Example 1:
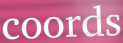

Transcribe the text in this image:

coords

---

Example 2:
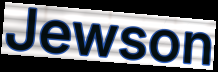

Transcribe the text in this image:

Jewson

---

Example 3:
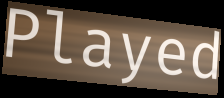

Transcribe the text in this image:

Played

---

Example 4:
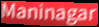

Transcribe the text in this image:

Maninagar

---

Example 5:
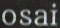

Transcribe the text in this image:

osai